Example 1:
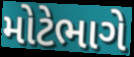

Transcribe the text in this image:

મોટેભાગે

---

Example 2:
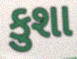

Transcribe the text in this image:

કુશા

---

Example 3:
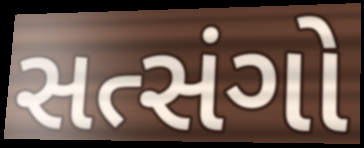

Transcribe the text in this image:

સત્સંગો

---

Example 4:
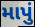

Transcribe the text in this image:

માપું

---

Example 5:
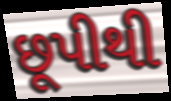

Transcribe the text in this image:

છૂપીથી